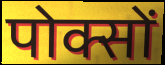
पोक्सों